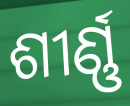
ଶୀର୍ଣ୍ଣ